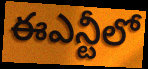
ఈఎన్టీలో